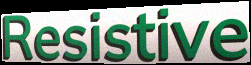
Resistive